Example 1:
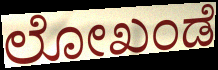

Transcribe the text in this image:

ಲೋಖಂಡೆ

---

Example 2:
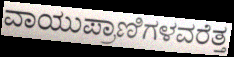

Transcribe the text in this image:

ವಾಯುಪ್ರಾಣಿಗಳವರೆತ್ತ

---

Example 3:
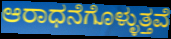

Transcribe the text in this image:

ಆರಾಧನೆಗೊಳ್ಳುತ್ತವೆ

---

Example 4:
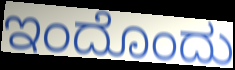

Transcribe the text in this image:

ಇಂದೊಂದು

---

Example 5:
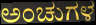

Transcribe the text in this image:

ಅಂಚುಗಳ